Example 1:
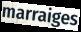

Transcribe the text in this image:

marraiges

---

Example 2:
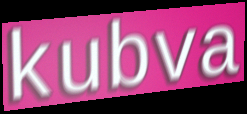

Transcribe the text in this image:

kubva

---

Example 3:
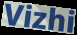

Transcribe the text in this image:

Vizhi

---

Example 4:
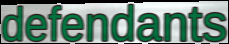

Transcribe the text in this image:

defendants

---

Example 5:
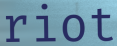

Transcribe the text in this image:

riot